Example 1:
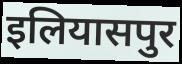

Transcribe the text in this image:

इलियासपुर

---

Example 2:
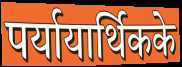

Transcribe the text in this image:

पर्यायार्थिकके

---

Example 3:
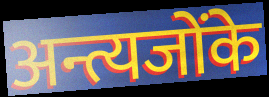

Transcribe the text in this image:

अन्त्यजोंके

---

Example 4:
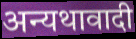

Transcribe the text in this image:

अन्यथावादी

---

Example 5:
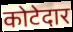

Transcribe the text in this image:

कोटेदार